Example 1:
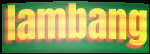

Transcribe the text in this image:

lambang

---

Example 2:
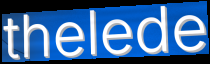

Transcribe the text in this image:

thelede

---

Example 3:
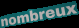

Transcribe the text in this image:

nombreux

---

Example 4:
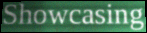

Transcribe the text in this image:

Showcasing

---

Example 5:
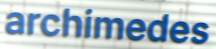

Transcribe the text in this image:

archimedes